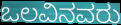
ಒಲವಿನವರು